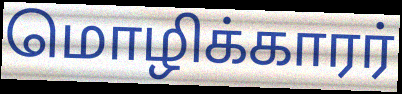
மொழிக்காரர்